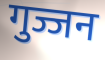
गुज्जन